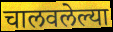
चालवलेल्या